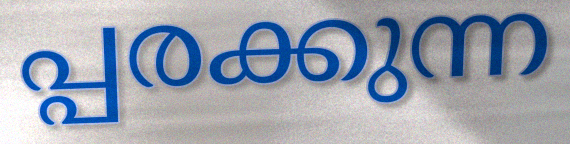
പ്പരക്കുന്ന